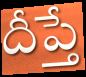
దీప్తే